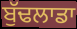
ਬੁੱਢਲਾਡਾ